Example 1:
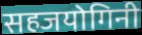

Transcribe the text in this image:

सहजयोगिनी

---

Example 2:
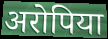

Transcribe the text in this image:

अरोपिया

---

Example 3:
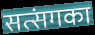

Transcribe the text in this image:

सत्संगका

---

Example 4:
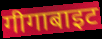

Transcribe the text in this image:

गीगाबाइट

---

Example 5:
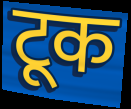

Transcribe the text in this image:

टूक